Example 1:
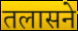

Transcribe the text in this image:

तलासने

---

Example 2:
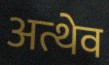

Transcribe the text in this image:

अत्थेव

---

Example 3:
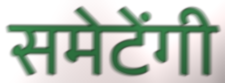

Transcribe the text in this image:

समेटेंगी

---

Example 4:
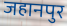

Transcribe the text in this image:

जहानपुर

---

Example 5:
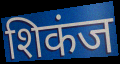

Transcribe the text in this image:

शिकंज